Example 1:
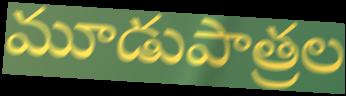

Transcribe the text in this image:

మూడుపాత్రల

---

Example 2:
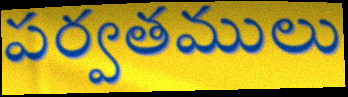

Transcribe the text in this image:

పర్వతములు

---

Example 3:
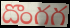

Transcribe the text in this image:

దొంగగ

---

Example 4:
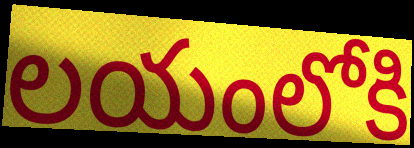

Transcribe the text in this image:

లయంలోకి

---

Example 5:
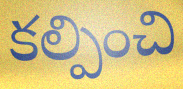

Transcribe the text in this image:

కల్పించి